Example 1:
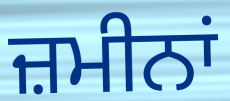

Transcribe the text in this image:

ਜ਼ਮੀਨਾਂ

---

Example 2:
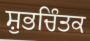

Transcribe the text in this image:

ਸ਼ੁਭਚਿੰਤਕ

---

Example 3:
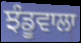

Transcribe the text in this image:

ਝੰਡੂਵਾਲਾ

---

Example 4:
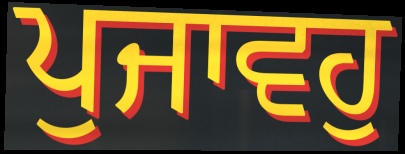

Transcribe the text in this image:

ਪੁਜਾਵਹੁ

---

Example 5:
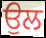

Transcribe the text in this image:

ਉਲ